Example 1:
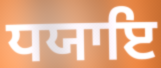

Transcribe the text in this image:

ਧਯਾਇ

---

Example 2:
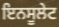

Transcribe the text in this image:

ਇਨਸੂਲੇਟ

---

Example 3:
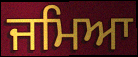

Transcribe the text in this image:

ਜਮਿਆ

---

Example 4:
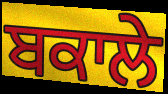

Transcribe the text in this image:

ਬਕਾਲੇ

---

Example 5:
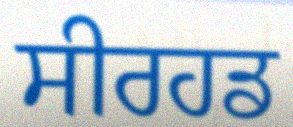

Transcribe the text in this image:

ਸੀਰਹਡ